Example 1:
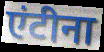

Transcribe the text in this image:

एंटीना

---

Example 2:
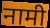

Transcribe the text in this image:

नामी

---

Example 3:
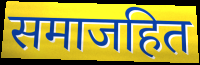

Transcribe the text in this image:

समाजहित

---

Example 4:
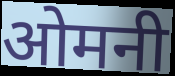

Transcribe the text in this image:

ओमनी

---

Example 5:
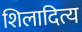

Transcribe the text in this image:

शिलादित्य